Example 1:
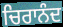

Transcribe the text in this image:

ਚਿਰਾਨੰਦ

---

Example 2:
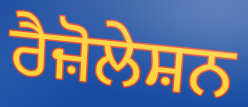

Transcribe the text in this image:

ਰੈਜ਼ੋਲੇਸ਼ਨ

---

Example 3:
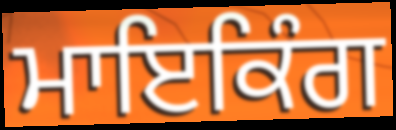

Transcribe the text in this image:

ਮਾਇਕਿੰਗ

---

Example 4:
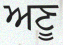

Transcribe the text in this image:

ਅਣੂ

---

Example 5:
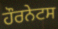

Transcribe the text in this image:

ਹੌਰਨੇਟਸ